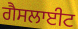
ਗੈਸਲਾਈਟ